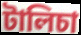
টালিচা